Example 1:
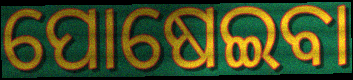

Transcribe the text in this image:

ପୋଷେଇବା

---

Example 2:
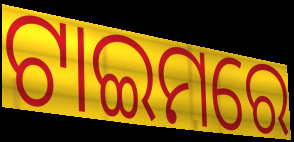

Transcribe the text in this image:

ଟାଇମରେ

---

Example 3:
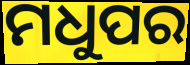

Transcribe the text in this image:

ମଧୁପର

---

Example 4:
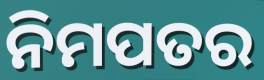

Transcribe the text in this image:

ନିମପତର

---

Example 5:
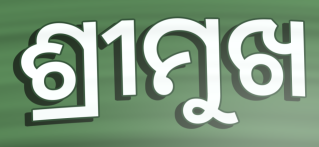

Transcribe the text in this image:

ଶ୍ରୀମୁଖ